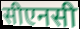
सीएनसी